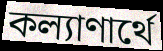
কল্যাণার্থে